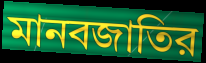
মানবজাতির